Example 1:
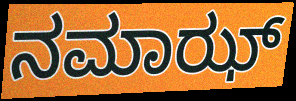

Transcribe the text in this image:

ನಮಾಝ್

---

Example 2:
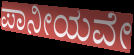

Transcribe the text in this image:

ಪಾನೀಯವೇ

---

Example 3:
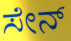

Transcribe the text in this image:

ಸೇನ್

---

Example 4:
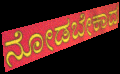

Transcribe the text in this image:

ನೋಡಬೇಕಾದ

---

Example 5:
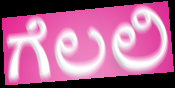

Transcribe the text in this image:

ಗೆಲಲಿ